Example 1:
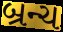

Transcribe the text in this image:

બ્રન્ચ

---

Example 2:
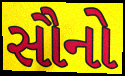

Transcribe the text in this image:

સૌનો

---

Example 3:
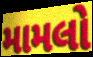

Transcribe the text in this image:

મામલો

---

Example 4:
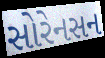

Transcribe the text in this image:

સોરેનસન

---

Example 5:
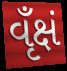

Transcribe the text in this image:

વૃઁક્ષં